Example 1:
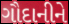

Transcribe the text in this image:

ગૌદાનીને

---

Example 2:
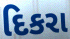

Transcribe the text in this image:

દિકરા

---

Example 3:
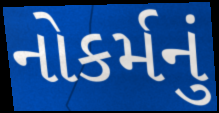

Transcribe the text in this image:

નોકર્મનું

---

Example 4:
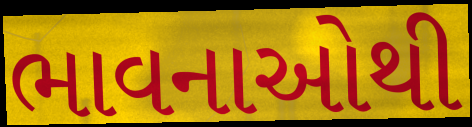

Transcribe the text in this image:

ભાવનાઓથી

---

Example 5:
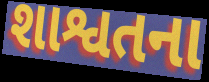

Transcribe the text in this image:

શાશ્વતના